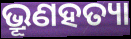
ଭ୍ରୂଣହତ୍ୟା